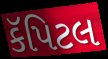
કૅપિટલ